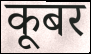
कूबर